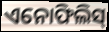
ଏନୋଫିଲିସ୍